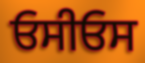
ਓਸੀਓਸ